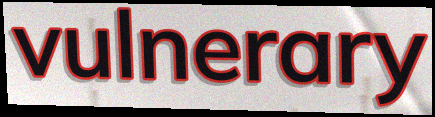
vulnerary